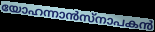
യോഹന്നാൻസ്നാപകൻ